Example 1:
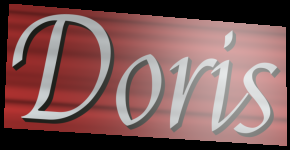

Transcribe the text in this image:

Doris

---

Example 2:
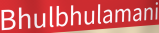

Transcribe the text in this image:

Bhulbhulamani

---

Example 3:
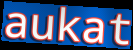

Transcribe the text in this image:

aukat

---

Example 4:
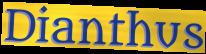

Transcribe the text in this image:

Dianthus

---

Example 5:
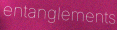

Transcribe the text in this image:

entanglements